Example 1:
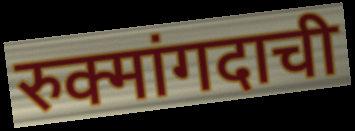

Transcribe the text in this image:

रुक्मांगदाची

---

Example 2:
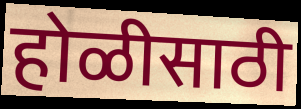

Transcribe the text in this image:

होळीसाठी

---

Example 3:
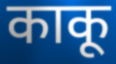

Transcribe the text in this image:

काकू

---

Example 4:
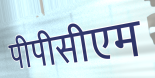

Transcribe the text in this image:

पीपीसीएम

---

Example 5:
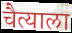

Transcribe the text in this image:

चैत्याला